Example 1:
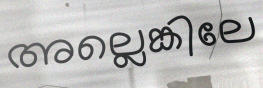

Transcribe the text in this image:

അല്ലെങ്കിലേ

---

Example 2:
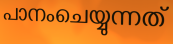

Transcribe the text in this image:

പാനംചെയ്യുന്നത്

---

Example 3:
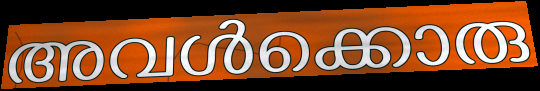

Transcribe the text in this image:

അവൾക്കൊരു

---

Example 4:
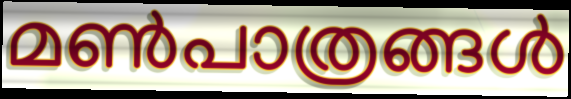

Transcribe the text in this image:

മൺപാത്രങ്ങൾ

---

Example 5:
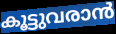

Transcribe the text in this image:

കൂട്ടുവരാൻ